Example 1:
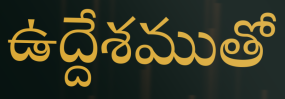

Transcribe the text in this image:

ఉద్దేశముతో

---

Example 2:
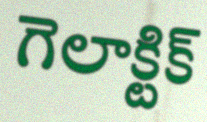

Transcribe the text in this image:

గెలాక్టిక్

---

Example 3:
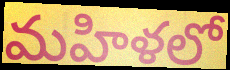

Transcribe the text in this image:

మహిళలో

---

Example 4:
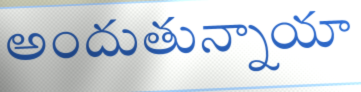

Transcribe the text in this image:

అందుతున్నాయా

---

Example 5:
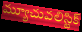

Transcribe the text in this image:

మ్యూచువలిస్టిక్